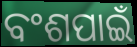
ବଂଶପାଇଁ